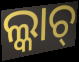
ଲ୍କାଚ୍